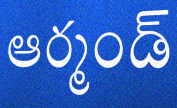
ఆర్మండ్